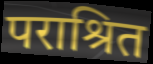
पराश्रित